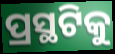
ପ୍ରସ୍ଥଟିକୁ